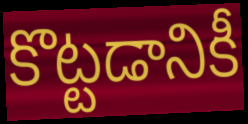
కొట్టడానికీ